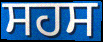
ਸਹਸ